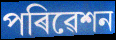
পৰিৱেশন